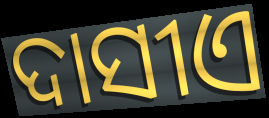
ଦାସୀଏ